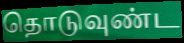
தொடுவுண்ட